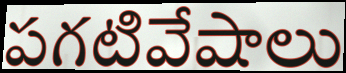
పగటివేషాలు